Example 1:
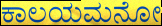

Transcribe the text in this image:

ಕಾಲಯಮನೋ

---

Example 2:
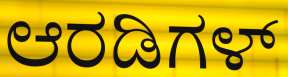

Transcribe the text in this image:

ಆರಡಿಗಳ್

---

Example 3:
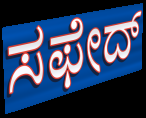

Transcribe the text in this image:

ಸಫೇದ್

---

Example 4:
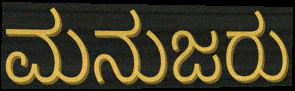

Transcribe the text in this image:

ಮನುಜರು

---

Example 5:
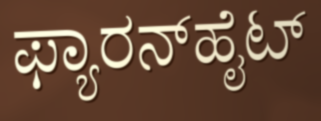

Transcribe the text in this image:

ಫ್ಯಾರನ್‌ಹೈಟ್